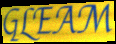
GLEAM